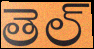
తెల్